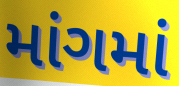
માંગમાં